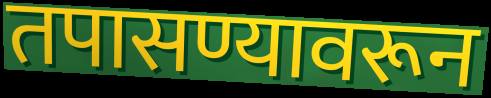
तपासण्यावरून